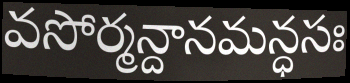
వసోర్మన్దానమన్ధసః